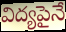
విద్యపైనే